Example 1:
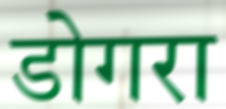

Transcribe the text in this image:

डोगरा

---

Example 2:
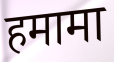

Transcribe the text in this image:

हमामा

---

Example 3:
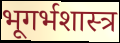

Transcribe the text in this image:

भूगर्भशास्त्र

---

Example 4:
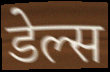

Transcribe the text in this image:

डेल्स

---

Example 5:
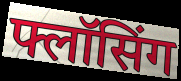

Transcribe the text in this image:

फ्लॉसिंग